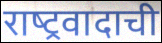
राष्ट्रवादाची